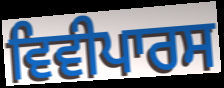
ਵਿਵੀਪਾਰਸ